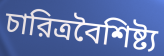
চারিত্রবৈশিষ্ট্য